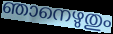
ഞാനെഴുതും